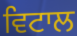
ਵਿਟਾਲ